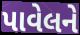
પાવેલને